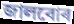
জালবোৰ